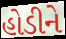
હોડીને